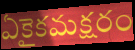
ఏకైకమక్షరం